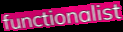
functionalist